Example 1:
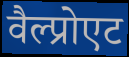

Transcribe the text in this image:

वैल्प्रोएट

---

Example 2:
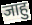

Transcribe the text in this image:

जाहु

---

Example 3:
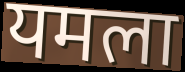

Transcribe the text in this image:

यमला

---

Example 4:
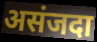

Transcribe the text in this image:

असंजदा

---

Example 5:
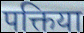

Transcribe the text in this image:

पक्तिया